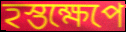
হস্তক্ষেপে